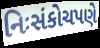
નિઃસંકોચપણે